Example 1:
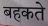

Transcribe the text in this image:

बहकते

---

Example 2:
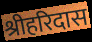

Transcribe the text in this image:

श्रीहरिदास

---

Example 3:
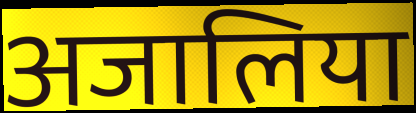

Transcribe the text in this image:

अजालिया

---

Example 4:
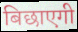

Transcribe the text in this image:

बिछाएगी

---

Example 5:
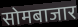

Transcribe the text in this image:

सोमबाजार